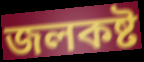
জলকষ্ট